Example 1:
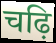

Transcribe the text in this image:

चढ़ि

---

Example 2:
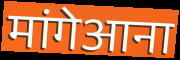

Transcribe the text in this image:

मांगेआना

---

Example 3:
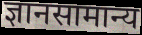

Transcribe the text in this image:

ज्ञानसामान्य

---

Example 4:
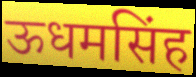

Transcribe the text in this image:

ऊधमसिंह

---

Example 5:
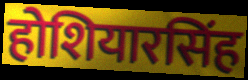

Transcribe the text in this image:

होशियारसिंह